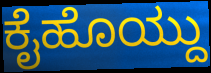
ಕೈಹೊಯ್ದು